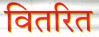
वितरित